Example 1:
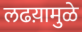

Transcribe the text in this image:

लढय़ामुळे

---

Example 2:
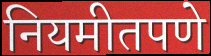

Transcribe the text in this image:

नियमीतपणे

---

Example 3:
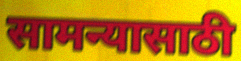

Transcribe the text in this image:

सामन्यासाठी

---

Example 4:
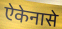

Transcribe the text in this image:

ऐकेनासे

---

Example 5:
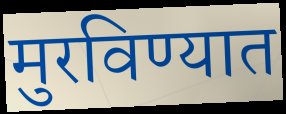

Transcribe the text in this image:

मुरविण्यात